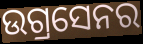
ଉଗ୍ରସେନର